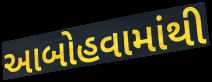
આબોહવામાંથી